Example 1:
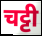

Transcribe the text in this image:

चट्टी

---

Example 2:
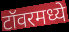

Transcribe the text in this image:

टॉवरमध्ये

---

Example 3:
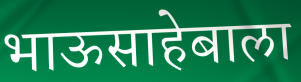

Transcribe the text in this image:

भाऊसाहेबाला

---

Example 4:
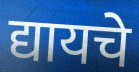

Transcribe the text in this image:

द्यायचे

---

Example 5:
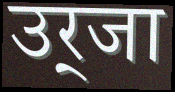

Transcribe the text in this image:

उर्जा